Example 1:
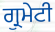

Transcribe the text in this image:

ਗ੍ਰੁਮੇਟੀ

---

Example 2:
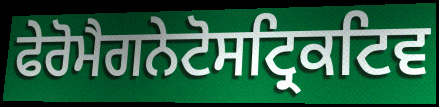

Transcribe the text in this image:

ਫੇਰੋਮੈਗਨੇਟੋਸਟ੍ਰਿਕਟਿਵ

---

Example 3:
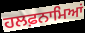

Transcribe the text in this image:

ਹਲਫ਼ਨਾਮਿਆਂ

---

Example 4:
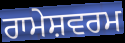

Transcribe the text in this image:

ਰਾਮੇਸ਼ਵਰਮ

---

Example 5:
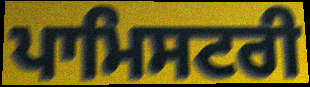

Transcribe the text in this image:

ਪਾਮਿਸਟਰੀ